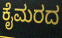
ಕೈಮರದ